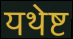
यथेष्ट